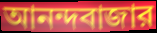
আনন্দবাজার